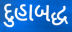
દુહાબદ્ધ